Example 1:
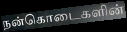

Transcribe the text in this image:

நன்கொடைகளின்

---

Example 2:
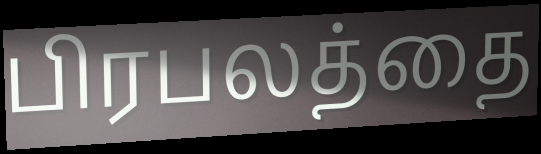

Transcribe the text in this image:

பிரபலத்தை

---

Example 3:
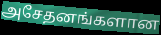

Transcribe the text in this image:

அசேதனங்களான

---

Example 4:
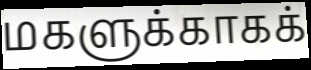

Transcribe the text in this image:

மகளுக்காகக்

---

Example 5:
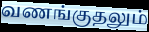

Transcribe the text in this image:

வணங்குதலும்